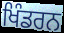
ਖਿੰਡਰਨ